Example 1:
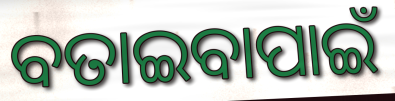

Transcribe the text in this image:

ବତାଇବାପାଇଁ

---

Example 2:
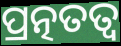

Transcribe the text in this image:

ପ୍ରତ୍ନତତ୍ୱ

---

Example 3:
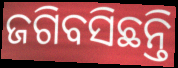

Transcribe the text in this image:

ଜଗିବସିଛନ୍ତି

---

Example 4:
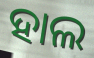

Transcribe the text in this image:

ହାଲ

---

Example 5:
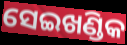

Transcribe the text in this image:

ସେଇଖଣ୍ଡିକ